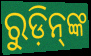
ରୁଡ଼ିନ୍‌ଙ୍କ